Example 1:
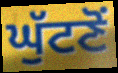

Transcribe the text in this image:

ਘੁੱਟਣੋਂ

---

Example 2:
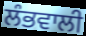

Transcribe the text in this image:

ਲੰਭਵਾਲੀ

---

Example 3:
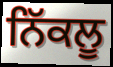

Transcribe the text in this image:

ਨਿੱਕਲੂ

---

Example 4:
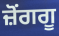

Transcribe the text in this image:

ਜ਼ੋਂਗਗੂ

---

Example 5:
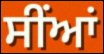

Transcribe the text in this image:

ਸੀਂਆਂ